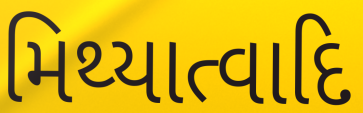
મિથ્યાત્વાદિ